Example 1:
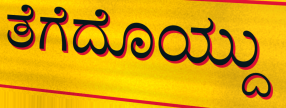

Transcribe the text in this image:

ತೆಗೆದೊಯ್ದು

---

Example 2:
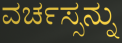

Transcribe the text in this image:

ವರ್ಚಸ್ಸನ್ನು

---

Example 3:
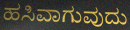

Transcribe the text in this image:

ಹಸಿವಾಗುವುದು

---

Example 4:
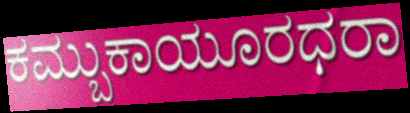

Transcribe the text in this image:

ಕಮ್ಬುಕಾಯೂರಧರಾ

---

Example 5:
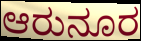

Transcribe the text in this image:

ಆರುನೂರ